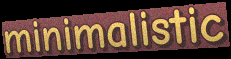
minimalistic